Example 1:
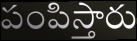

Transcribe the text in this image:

పంపిస్తారు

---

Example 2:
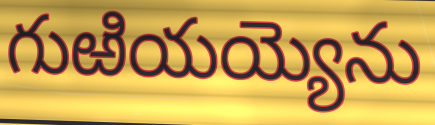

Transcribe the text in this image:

గుఱియయ్యెను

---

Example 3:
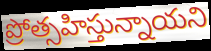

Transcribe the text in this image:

ప్రోత్సహిస్తున్నాయని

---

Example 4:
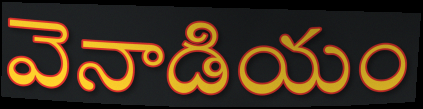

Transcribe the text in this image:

వెనాడియం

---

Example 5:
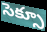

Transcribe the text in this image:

సెక్సూ